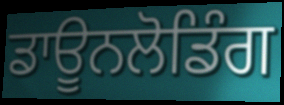
ਡਾਊਨਲੋਡਿੰਗ